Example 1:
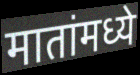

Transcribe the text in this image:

मातांमध्ये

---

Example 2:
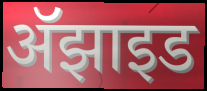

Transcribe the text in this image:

ॲझाइड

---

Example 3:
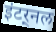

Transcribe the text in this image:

इंटर्नल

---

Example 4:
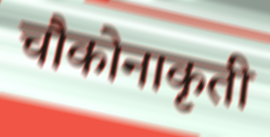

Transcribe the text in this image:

चौकोनाकृती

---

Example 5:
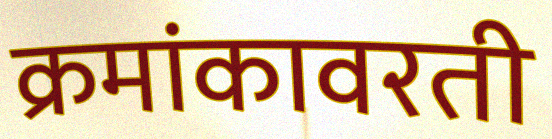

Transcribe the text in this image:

क्रमांकावरती